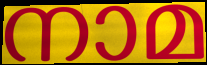
നാമ